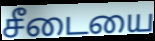
சீடையை